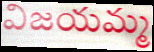
విజయమ్మ